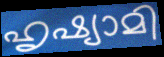
ഹൃഷ്യാമി